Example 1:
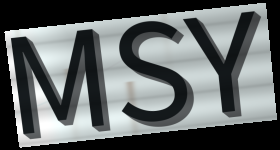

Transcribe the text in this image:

MSY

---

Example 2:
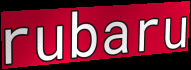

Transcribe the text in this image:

rubaru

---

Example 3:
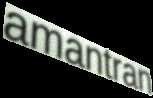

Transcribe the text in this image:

amantran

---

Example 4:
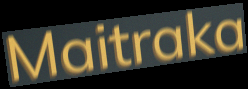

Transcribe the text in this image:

Maitraka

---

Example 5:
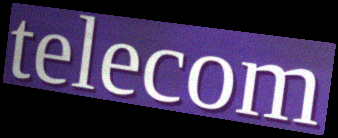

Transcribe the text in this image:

telecom